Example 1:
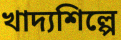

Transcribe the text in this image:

খাদ্যশিল্পে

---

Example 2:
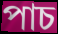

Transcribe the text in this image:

পাচ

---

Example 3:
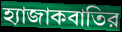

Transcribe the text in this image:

হ্যাজাকবাতির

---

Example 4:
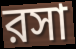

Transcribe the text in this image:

রসা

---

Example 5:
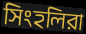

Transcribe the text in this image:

সিংহলিরা